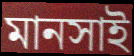
মানসাই